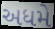
અધમે